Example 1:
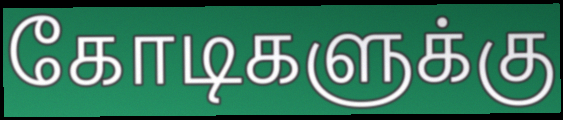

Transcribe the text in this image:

கோடிகளுக்கு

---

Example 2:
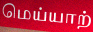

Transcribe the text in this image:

மெய்யாற்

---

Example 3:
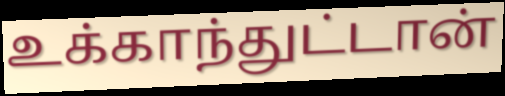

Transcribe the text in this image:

உக்காந்துட்டான்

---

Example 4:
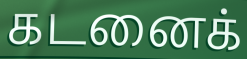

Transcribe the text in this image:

கடனைக்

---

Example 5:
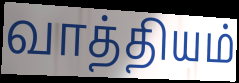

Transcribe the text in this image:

வாத்தியம்